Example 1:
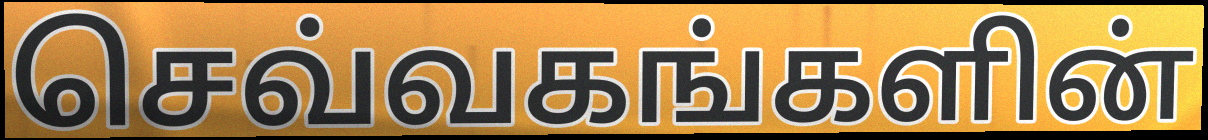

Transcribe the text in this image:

செவ்வகங்களின்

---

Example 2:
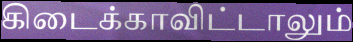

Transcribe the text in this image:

கிடைக்காவிட்டாலும்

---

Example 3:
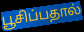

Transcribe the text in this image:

பூசிப்பதால்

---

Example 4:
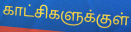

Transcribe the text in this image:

காட்சிகளுக்குள்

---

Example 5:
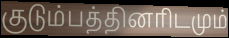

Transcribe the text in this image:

குடும்பத்தினரிடமும்